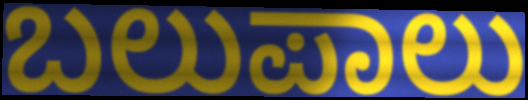
ಬಲುಪಾಲು